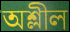
অশ্লীল